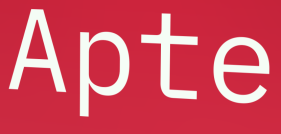
Apte